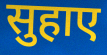
सुहाए